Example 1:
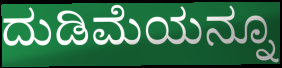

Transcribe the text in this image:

ದುಡಿಮೆಯನ್ನೂ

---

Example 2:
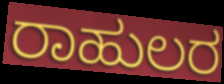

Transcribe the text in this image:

ರಾಹುಲರ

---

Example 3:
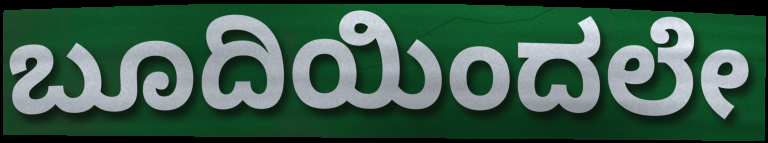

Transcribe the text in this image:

ಬೂದಿಯಿಂದಲೇ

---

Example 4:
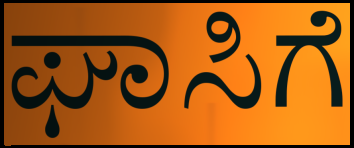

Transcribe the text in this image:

ಘಾಸಿಗೆ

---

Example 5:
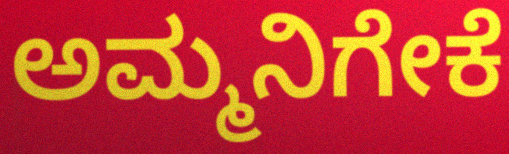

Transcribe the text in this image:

ಅಮ್ಮನಿಗೇಕೆ